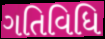
ગતિવિધિ